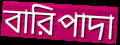
বারিপাদা